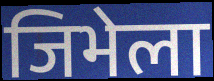
जिभेला